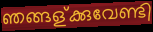
ഞങ്ങള്ക്കുവേണ്ടി